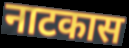
नाटकास